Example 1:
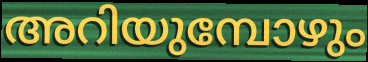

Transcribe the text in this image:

അറിയുമ്പോഴും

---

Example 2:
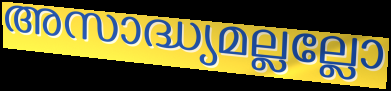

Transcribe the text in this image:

അസാദ്ധ്യമല്ലല്ലോ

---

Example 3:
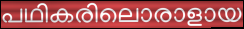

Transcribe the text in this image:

പഥികരിലൊരാളായ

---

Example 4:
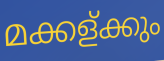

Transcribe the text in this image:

മക്കള്ക്കും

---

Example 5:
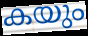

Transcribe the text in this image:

കയും